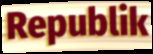
Republik